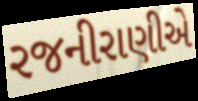
રજનીરાણીએ